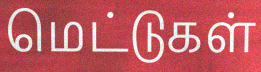
மெட்டுகள்